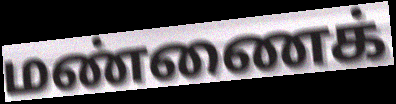
மண்ணைக்